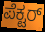
ಪೆಕ್ಟರ್